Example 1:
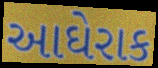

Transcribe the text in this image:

આઘેરાક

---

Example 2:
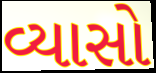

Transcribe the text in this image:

વ્યાસો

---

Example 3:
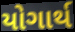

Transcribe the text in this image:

યોગાર્થ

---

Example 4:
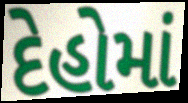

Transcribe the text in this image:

દેહોમાં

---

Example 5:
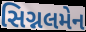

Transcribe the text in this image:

સિગ્નલમેન